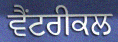
ਵੈਂਟਰੀਕਲ